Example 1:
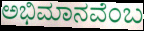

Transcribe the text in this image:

ಅಭಿಮಾನವೆಂಬ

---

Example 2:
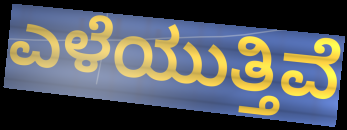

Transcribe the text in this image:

ಎಳೆಯುತ್ತಿವೆ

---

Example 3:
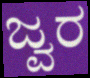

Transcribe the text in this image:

ಜ್ವರ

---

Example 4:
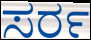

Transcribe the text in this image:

ಸರ್ರ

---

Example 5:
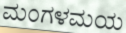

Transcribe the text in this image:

ಮಂಗಳಮಯ